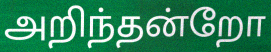
அறிந்தன்றோ